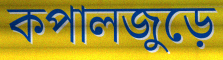
কপালজুড়ে